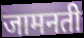
जामनती